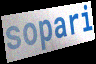
sopari